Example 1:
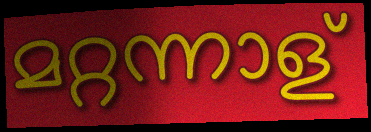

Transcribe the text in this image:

മറ്റന്നാള്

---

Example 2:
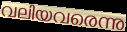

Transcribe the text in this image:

വലിയവരെന്നു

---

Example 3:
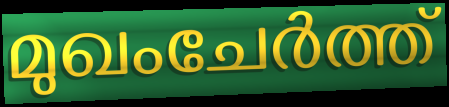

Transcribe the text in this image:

മുഖംചേർത്ത്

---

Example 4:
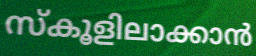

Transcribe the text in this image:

സ്കൂളിലാക്കാൻ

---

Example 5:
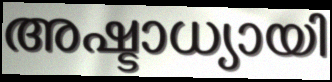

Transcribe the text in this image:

അഷ്ടാധ്യായി